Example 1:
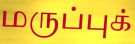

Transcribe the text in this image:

மருப்புக்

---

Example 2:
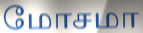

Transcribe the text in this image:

மோசமா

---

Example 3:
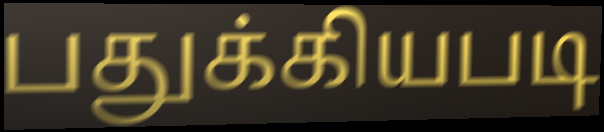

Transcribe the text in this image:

பதுக்கியபடி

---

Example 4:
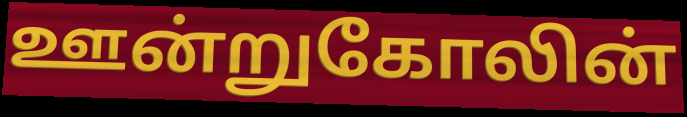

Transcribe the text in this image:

ஊன்றுகோலின்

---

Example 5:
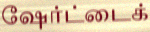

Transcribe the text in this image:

ஷேர்ட்டைக்